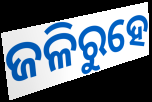
ଜଳିରୁହେ